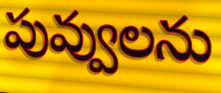
పువ్వులను